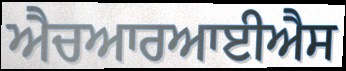
ਐਚਆਰਆਈਐਸ